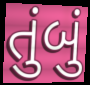
તુંબું